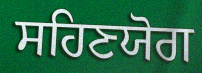
ਸਹਿਣਯੋਗ